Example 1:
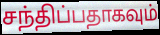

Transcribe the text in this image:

சந்திப்பதாகவும்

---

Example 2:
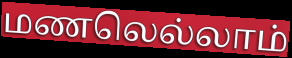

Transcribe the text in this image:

மணலெல்லாம்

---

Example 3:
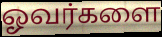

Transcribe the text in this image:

ஓவர்களை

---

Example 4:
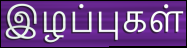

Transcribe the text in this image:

இழப்புகள்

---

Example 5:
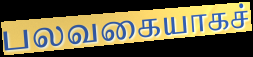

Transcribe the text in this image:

பலவகையாகச்